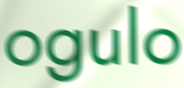
ogulo